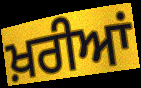
ਖ਼ਰੀਆਂ